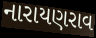
નારાયણરાવ